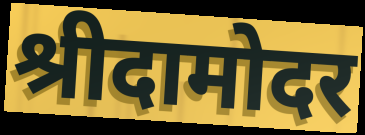
श्रीदामोदर